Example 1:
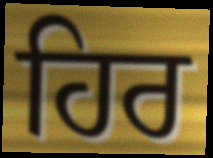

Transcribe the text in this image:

ਹਿਰ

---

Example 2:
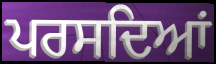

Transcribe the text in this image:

ਪਰਸਦਿਆਂ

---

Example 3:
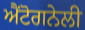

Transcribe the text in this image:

ਐਂਟੋਗਨੇਲੀ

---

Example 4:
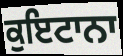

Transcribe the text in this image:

ਕੁਇਟਾਨਾ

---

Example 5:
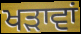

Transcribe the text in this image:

ਖੜਾਵਾਂ